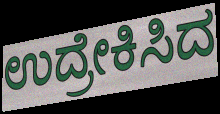
ಉದ್ರೇಕಿಸಿದ